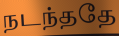
நடந்ததே